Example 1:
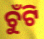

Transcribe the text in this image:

ଚୁଁଟି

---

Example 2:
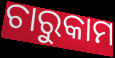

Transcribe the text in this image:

ଚାରୁକାମ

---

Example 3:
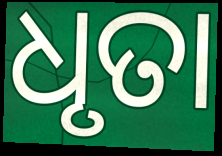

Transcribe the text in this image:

ଧୃତା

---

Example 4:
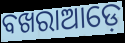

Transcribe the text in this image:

ବଖରାଆଡ଼େ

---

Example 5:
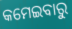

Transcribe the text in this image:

କମେଇବାରୁ